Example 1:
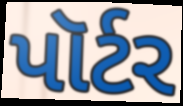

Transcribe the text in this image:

પૉર્ટર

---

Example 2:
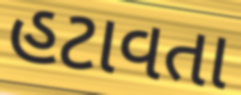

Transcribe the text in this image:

હટાવતા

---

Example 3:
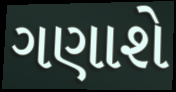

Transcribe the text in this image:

ગણાશે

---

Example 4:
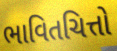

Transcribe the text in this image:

ભાવિતચિત્તો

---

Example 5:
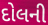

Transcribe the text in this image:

દોલની